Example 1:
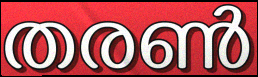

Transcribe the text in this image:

തരൺ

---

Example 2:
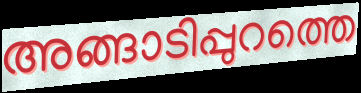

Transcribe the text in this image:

അങ്ങാടിപ്പുറത്തെ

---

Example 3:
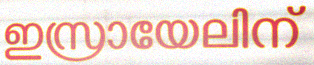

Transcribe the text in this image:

ഇസ്രായേലിന്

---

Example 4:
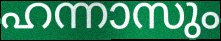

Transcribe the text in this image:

ഹന്നാസും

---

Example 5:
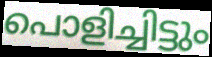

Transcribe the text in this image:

പൊളിച്ചിട്ടും